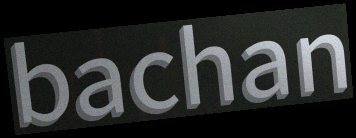
bachan